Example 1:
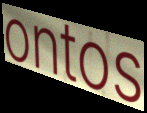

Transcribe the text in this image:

ontos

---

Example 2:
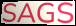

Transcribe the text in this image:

SAGS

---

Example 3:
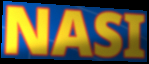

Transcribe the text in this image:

NASI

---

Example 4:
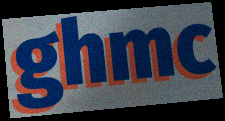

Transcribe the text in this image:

ghmc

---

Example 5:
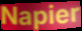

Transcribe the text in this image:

Napier